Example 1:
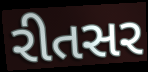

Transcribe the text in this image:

રીતસર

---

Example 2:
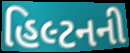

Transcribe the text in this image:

હિલ્ટનની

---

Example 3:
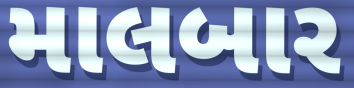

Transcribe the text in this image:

માલબાર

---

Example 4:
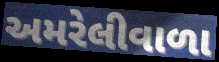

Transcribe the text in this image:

અમરેલીવાળા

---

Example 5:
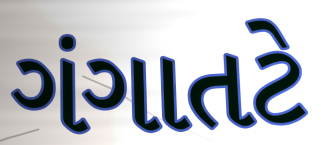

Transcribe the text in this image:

ગંગાતટે